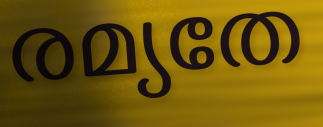
രമ്യതേ